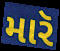
મારૅ